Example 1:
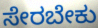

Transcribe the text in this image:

ಸೇರಬೇಕು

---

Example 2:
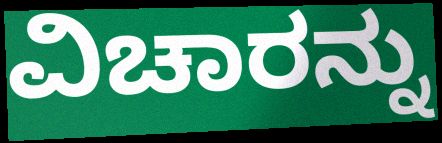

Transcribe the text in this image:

ವಿಚಾರನ್ನು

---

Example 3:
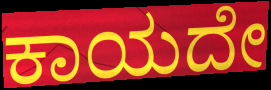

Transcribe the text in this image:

ಕಾಯದೇ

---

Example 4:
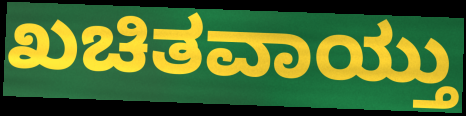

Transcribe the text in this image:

ಖಚಿತವಾಯ್ತು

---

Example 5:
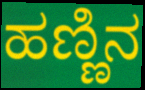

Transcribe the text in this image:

ಹಣ್ಣಿನ